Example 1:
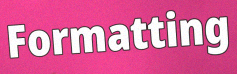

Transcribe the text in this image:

Formatting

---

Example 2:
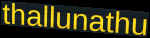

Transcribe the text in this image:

thallunathu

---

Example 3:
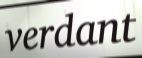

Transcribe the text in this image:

verdant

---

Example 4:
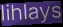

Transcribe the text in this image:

lihlays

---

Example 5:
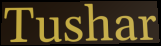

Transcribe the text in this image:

Tushar